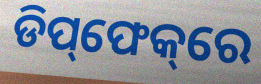
ଡିପ୍‌ଫେକ୍‌ରେ